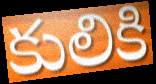
కులికి